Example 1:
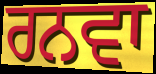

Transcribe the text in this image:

ਰਨਵਾ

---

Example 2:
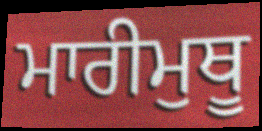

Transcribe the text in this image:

ਮਾਰੀਮੁਥੂ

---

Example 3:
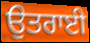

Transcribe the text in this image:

ਉਤਰਾਈ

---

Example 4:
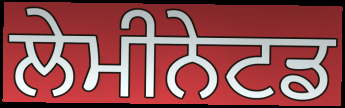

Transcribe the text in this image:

ਲੇਮੀਨੇਟਡ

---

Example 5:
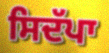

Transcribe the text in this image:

ਸਿਦੱਪਾ